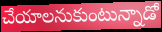
చేయాలనుకుంటున్నాడో